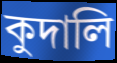
কুদালি